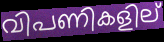
വിപണികളില്